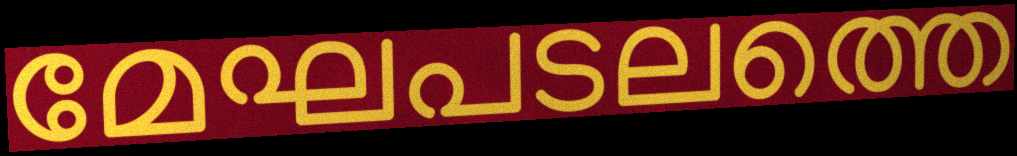
മേഘപടലത്തെ